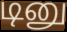
டினு